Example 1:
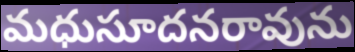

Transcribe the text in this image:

మధుసూదనరావును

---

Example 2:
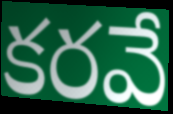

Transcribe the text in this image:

కరవే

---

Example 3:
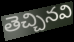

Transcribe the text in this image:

తెచ్చినవి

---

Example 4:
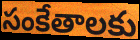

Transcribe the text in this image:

సంకేతాలకు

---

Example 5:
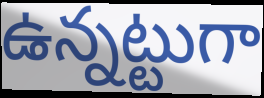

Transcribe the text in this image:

ఉన్నట్టుగా